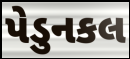
પેડુનકલ